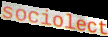
sociolect